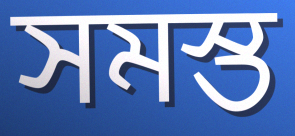
সমস্ত